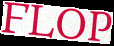
FLOP